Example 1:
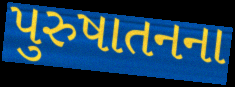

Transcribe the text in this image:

પુરુષાતનના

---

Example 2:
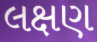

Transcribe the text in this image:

લક્ષણ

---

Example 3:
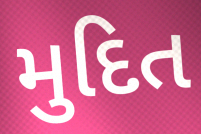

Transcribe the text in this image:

મુદિત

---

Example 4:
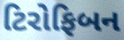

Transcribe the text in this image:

ટિરોફિબન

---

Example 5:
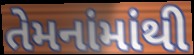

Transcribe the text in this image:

તેમનાંમાંથી